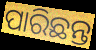
ପାରିଛନ୍ତ